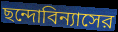
ছন্দোবিন্যাসের